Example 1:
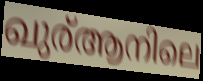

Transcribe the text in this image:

ഖുര്ആനിലെ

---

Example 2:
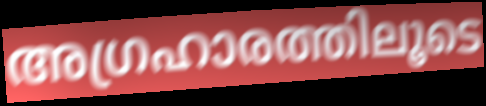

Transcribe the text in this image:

അഗ്രഹാരത്തിലൂടെ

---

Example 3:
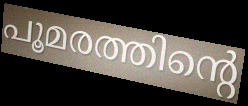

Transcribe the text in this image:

പൂമരത്തിന്റെ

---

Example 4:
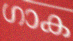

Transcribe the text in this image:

ഗാക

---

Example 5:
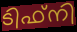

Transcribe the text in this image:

ടിഫ്നി